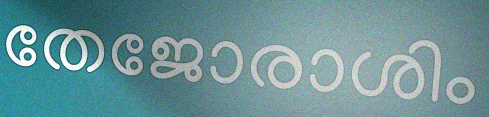
തേജോരാശിം